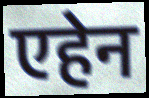
एहेन